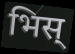
भिस्